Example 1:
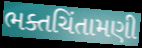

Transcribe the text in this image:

ભક્તચિંતામણી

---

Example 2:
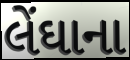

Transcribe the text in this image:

લેંઘાના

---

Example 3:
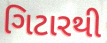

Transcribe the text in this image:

ગિટારથી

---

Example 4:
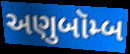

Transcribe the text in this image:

અણુબૉમ્બ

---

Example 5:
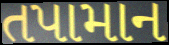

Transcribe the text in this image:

તપામાન